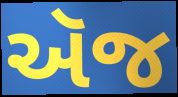
ઍજ